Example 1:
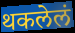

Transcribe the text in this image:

थकलेलं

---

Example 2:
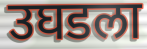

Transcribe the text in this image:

उघडला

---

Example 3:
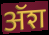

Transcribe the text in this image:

ॲश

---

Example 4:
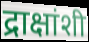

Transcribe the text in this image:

द्राक्षांशी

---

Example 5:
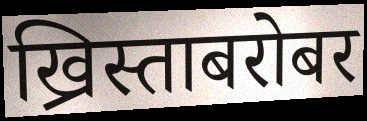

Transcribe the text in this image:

ख्रिस्ताबरोबर